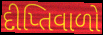
દીપ્તિવાળો